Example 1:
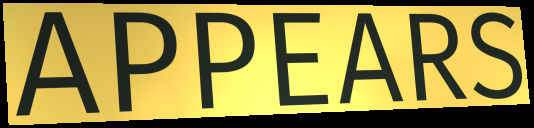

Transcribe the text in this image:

APPEARS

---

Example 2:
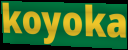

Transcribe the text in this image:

koyoka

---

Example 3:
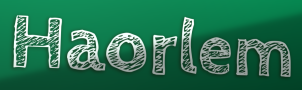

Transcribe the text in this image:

Haorlem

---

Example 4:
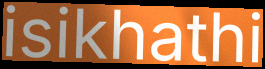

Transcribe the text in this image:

isikhathi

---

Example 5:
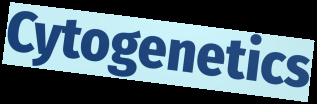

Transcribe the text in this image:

Cytogenetics